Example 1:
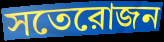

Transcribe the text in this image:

সতেরোজন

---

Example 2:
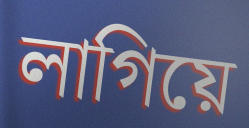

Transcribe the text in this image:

লাগিয়ে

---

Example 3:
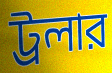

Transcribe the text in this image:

ট্রলার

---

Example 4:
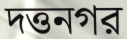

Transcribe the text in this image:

দত্তনগর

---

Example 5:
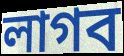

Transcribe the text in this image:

লাগব